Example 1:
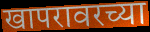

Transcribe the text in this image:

खापरावरच्या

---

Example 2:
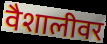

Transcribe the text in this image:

वैशालीवर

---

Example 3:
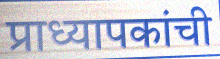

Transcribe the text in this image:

प्राध्यापकांची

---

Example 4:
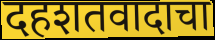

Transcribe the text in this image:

दहशतवादाचा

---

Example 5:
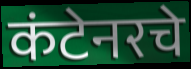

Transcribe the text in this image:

कंटेनरचे